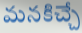
మనకిచ్చే